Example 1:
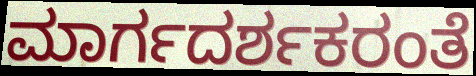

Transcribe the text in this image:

ಮಾರ್ಗದರ್ಶಕರಂತೆ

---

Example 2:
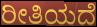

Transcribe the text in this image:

ರೀತಿಯದೆ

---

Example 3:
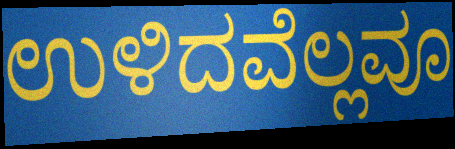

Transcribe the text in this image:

ಉಳಿದವೆಲ್ಲವೂ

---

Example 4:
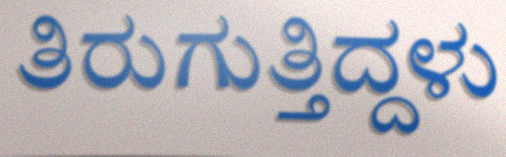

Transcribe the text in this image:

ತಿರುಗುತ್ತಿದ್ದಳು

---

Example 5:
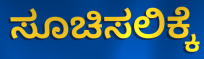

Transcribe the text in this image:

ಸೂಚಿಸಲಿಕ್ಕೆ